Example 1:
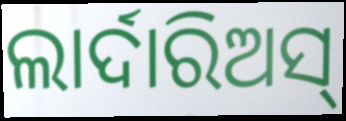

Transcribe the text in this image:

ଲାର୍ଦାରିଅସ୍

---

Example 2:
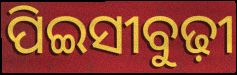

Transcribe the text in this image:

ପିଇସୀବୁଢ଼ୀ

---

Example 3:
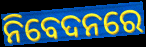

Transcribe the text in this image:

ନିବେଦନରେ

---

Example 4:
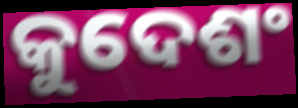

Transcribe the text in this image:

କୁଦେଶଂ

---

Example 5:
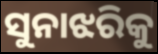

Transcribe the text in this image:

ସୁନାଝରିକୁ